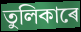
তুলিকাৰে